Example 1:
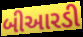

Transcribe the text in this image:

બીઆરડી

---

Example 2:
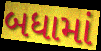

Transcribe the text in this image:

બધામાં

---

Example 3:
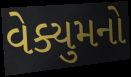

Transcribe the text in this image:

વેક્યુમનો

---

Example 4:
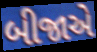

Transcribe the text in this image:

બીજાએ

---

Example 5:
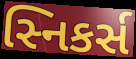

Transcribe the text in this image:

સ્નિકર્સ